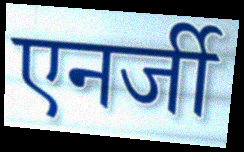
एनर्जी